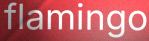
flamingo